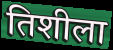
तिशीला